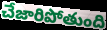
చేజారిపోతుంది